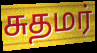
சுதமர்